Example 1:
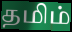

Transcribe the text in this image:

தமிம்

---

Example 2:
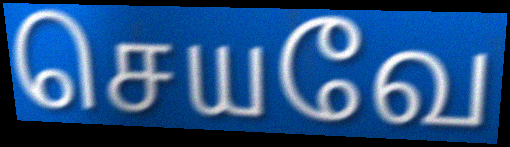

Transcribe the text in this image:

செயவே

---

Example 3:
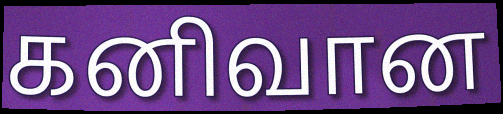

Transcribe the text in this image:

கனிவான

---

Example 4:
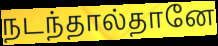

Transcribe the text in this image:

நடந்தால்தானே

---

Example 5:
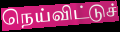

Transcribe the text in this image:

நெய்விட்டுச்